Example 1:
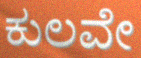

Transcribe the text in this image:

ಕುಲವೇ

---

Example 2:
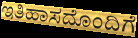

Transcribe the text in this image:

ಇತಿಹಾಸದೊಂದಿಗೆ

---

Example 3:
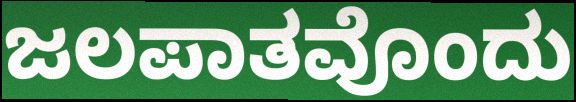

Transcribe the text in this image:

ಜಲಪಾತವೊಂದು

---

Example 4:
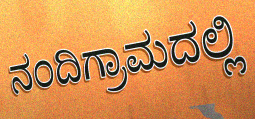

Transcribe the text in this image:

ನಂದಿಗ್ರಾಮದಲ್ಲಿ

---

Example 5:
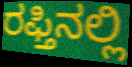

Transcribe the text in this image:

ರಫ್ತಿನಲ್ಲಿ